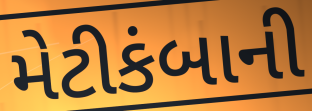
મેટીકંબાની